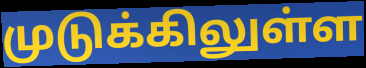
முடுக்கிலுள்ள